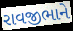
રાવજીભાને